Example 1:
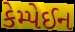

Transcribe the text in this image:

કેમ્પેઈન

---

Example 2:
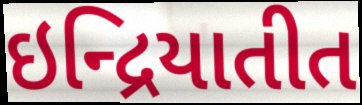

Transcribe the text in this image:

ઇન્દ્રિયાતીત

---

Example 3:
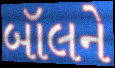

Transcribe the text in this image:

બૉલને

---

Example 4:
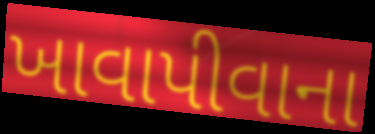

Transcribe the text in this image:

ખાવાપીવાના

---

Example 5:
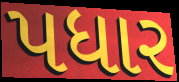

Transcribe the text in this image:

પધાર